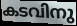
കടവിനു